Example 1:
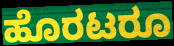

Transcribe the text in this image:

ಹೊರಟರೂ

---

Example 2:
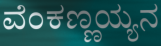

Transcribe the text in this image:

ವೆಂಕಣ್ಣಯ್ಯನ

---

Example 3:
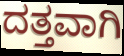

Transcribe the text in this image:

ದತ್ತವಾಗಿ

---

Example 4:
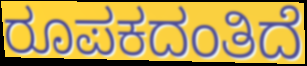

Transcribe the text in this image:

ರೂಪಕದಂತಿದೆ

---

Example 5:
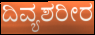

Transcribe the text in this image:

ದಿವ್ಯಶರೀರ